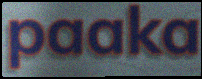
paaka